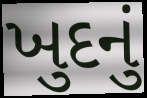
ખુદનું